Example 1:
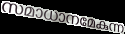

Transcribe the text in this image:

സമാധാനമേകുന്ന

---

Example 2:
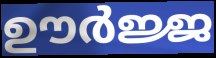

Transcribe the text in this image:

ഊർജ്ജ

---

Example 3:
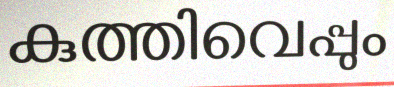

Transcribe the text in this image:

കുത്തിവെപ്പും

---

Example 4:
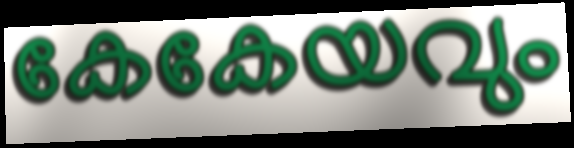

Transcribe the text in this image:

കേകേയവും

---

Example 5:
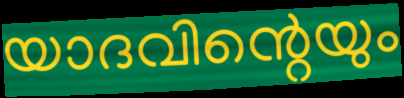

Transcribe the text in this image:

യാദവിന്റെയും